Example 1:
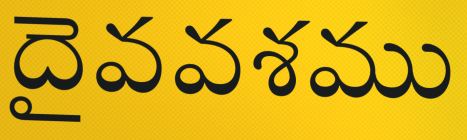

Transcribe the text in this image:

దైవవశము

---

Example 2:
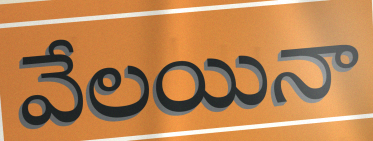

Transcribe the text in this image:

వేలయినా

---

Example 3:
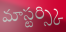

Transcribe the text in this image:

మాస్టర్స్కి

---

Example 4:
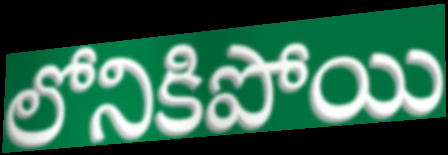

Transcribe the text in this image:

లోనికిపోయి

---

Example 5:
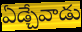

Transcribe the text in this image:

ఏడ్చేవాడు